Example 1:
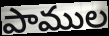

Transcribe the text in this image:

పాముల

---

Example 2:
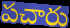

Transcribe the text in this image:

పచారు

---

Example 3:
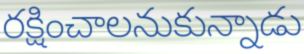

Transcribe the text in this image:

రక్షించాలనుకున్నాడు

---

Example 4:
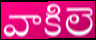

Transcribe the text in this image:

వాకిలె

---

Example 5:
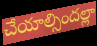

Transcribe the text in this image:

చేయాల్సిందల్లా